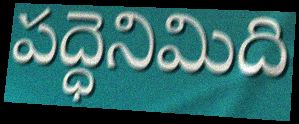
పద్ధెనిమిది